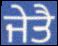
ਜੇਤੈ